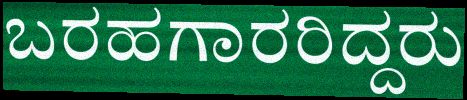
ಬರಹಗಾರರಿದ್ದರು